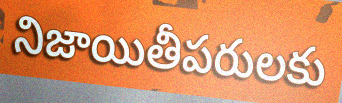
నిజాయితీపరులకు